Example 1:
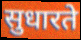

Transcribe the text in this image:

सुधारते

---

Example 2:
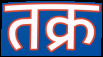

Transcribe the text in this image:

तक्र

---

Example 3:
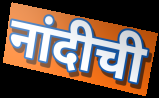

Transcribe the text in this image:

नांदीची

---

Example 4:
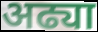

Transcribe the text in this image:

अढ्या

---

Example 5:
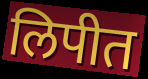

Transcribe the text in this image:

लिपीत